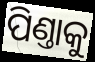
ପିଣ୍ତାକୁ